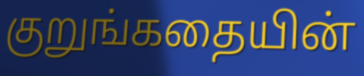
குறுங்கதையின்